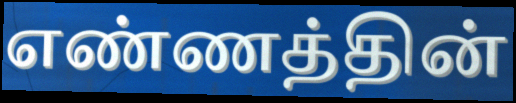
எண்ணத்தின்